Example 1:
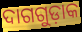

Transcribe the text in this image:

ଦାଗଗୁଡ଼ାକ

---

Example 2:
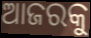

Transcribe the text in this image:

ଆଜରକୁ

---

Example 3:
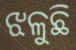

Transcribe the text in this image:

ଝଳୁଛି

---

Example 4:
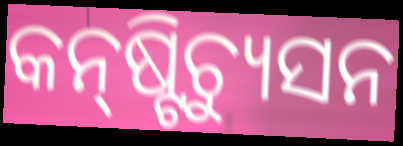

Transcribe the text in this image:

କନ୍‍ଷ୍ଟିଚ୍ୟୁସନ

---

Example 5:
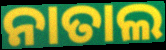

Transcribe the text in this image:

ନାତାଲ